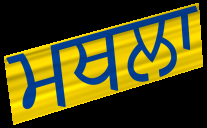
ਮਥਲਾ